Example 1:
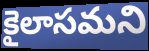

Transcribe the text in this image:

కైలాసమని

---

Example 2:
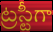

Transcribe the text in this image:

ట్రస్టీగా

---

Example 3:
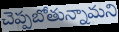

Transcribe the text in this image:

చెప్పబోతున్నామని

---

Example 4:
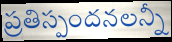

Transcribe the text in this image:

ప్రతిస్పందనలన్నీ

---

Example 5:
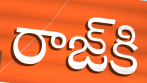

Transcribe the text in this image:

రాజ్‌కి